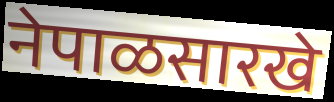
नेपाळसारखे